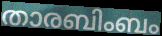
താരബിംബം